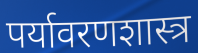
पर्यावरणशास्त्र